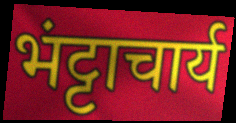
भंट्टाचार्य